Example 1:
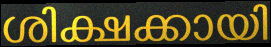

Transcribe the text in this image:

ശിക്ഷക്കായി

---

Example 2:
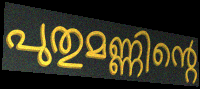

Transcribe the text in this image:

പുതുമണ്ണിന്റെ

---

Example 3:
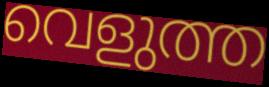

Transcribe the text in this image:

വെളുത്ത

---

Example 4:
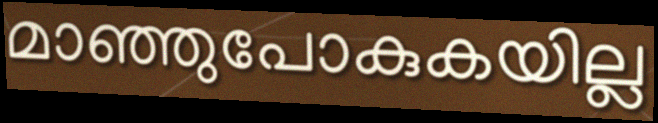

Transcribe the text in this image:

മാഞ്ഞുപോകുകയില്ല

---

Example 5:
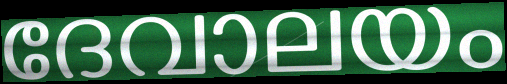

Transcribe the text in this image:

ദേവാലയം